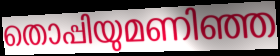
തൊപ്പിയുമണിഞ്ഞ